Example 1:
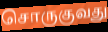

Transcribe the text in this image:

சொருகுவது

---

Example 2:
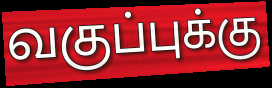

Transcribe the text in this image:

வகுப்புக்கு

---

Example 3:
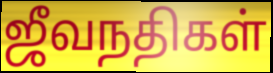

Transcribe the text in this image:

ஜீவநதிகள்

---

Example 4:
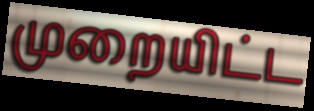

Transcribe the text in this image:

முறையிட்ட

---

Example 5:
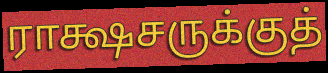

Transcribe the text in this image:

ராக்ஷசருக்குத்